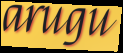
arugu